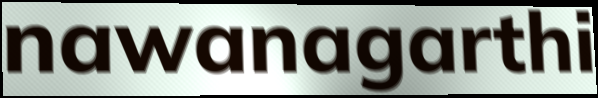
nawanagarthi